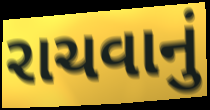
રાચવાનું